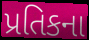
પ્રતિકના